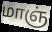
மாஞ்